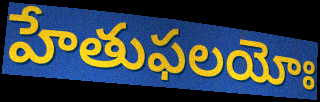
హేతుఫలయోః